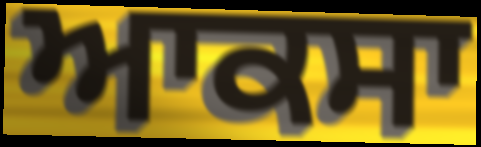
ਆਕਸਾ